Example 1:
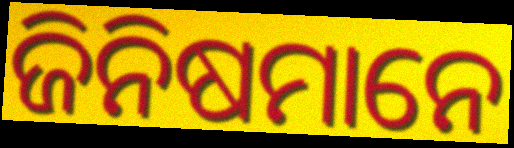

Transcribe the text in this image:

ଜିନିଷମାନେ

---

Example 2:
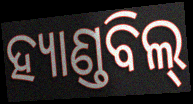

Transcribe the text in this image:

ହ୍ୟାଣ୍ଡବିଲ୍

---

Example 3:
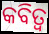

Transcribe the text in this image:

କବିତ୍ବ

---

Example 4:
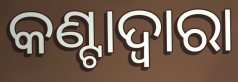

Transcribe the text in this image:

କଣ୍ଟାଦ୍ୱାରା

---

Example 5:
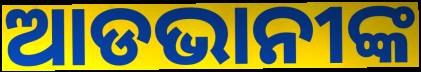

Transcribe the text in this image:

ଆଡଭାନୀଙ୍କ